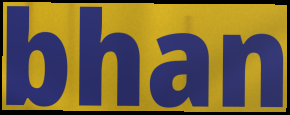
bhan